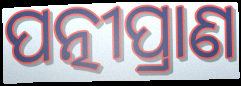
ପତ୍ନୀପ୍ରାଣ